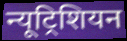
न्यूट्रिशियन